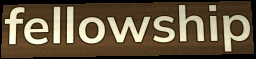
fellowship